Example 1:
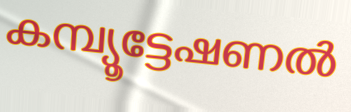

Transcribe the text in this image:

കമ്പ്യൂട്ടേഷണൽ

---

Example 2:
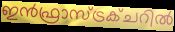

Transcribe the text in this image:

ഇൻഫ്രാസ്ട്രക്ചറിൽ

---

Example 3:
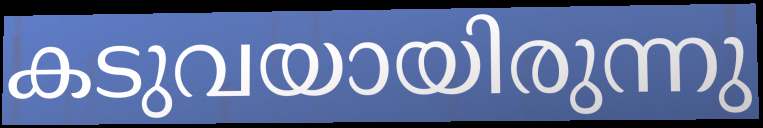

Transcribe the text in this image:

കടുവയായിരുന്നു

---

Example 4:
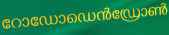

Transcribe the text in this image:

റോഡോഡെൻഡ്രോൺ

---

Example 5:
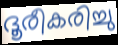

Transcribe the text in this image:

ദൂരീകരിച്ചു